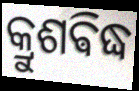
କ୍ରୁଶଵିଦ୍ଧ